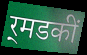
र्मडकीं